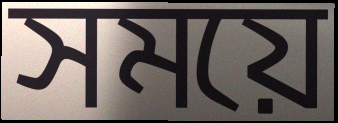
সময়ে